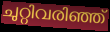
ചുറ്റിവരിഞ്ഞ്